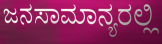
ಜನಸಾಮಾನ್ಯರಲ್ಲಿ